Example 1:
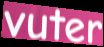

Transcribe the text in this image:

vuter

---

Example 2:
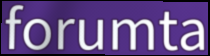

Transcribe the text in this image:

forumta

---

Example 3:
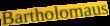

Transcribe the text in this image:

Bartholomaus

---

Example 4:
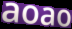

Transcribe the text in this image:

aoao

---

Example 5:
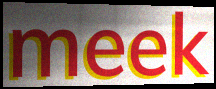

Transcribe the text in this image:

meek